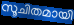
സൂചിതമായി